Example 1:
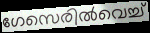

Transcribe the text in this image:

ഗേസെരിൽവെച്ച്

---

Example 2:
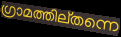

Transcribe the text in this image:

ഗ്രാമത്തില്തന്നെ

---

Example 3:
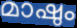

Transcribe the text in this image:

മാഷും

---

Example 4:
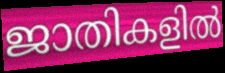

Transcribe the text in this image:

ജാതികളിൽ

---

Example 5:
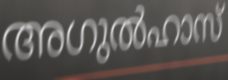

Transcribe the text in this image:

അഗുൽഹാസ്